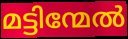
മട്ടിന്മേൽ